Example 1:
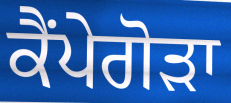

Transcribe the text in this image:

ਕੈਂਪੇਗੋੜਾ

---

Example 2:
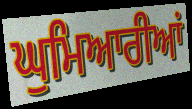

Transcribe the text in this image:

ਘੁਮਿਆਰੀਆਂ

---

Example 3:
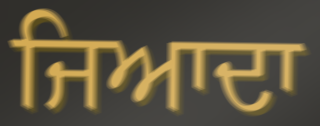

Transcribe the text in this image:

ਜਿਆਦਾ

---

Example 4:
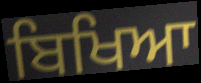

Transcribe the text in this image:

ਬਿਖਿਆ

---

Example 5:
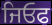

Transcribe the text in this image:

ਜਿਓਫ